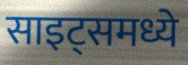
साइट्समध्ये